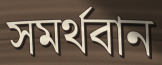
সমর্থবান